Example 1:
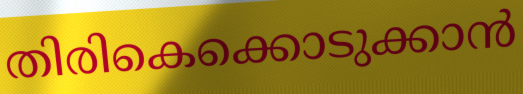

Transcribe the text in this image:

തിരികെക്കൊടുക്കാൻ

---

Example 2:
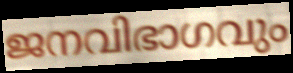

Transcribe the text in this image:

ജനവിഭാഗവും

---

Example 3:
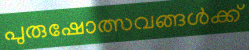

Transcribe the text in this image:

പുരുഷോത്സവങ്ങൾക്ക്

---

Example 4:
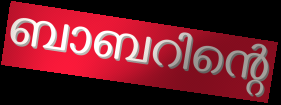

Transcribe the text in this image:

ബാബറിന്റെ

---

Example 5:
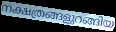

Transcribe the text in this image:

നക്ഷത്രങ്ങളുറങ്ങിയ